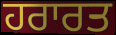
ਹਰਾਰਤ